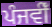
ਪੰਜਵੀਁ